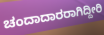
ಚಂದಾದಾರರಾಗಿದ್ದೀರಿ